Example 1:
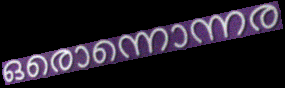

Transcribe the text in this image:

ഒരൊന്നൊന്നര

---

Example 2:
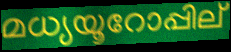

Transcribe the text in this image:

മധ്യയൂറോപ്പില്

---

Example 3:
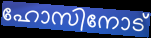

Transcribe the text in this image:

ഹോസിനോട്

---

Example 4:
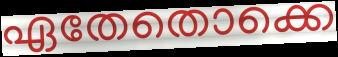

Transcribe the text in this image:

ഏതേതൊക്കെ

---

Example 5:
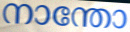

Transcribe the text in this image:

നാന്തോ